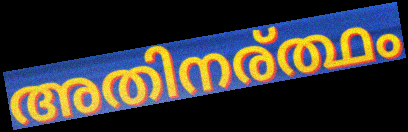
അതിനര്ത്ഥം